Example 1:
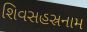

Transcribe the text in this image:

શિવસહસ્રનામ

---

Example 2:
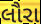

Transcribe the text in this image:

લૌરા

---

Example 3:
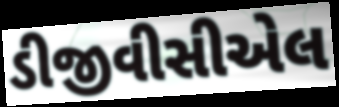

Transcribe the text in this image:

ડીજીવીસીએલ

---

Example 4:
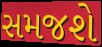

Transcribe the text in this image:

સમજશે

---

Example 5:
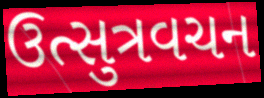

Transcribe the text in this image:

ઉત્સુત્રવચન